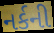
નર્કની